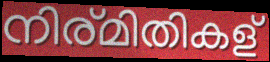
നിര്മിതികള്